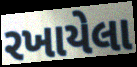
રખાયેલા